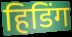
हिडिंग